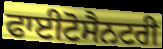
ਫਾਈਟੋਸੈਨਟਰੀ